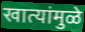
खात्यांमुळे